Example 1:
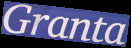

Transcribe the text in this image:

Granta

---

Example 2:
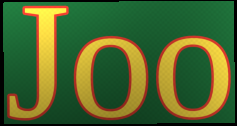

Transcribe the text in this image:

Joo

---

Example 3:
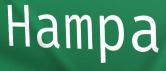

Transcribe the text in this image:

Hampa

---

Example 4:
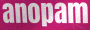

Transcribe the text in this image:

anopam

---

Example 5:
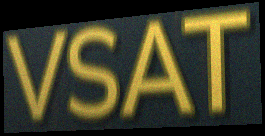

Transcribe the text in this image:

VSAT